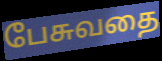
பேசுவதை